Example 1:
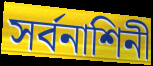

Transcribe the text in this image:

সর্বনাশিনী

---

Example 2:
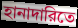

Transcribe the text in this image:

হানাদারিতে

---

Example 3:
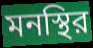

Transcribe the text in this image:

মনস্থির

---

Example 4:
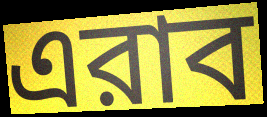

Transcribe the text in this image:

এরাব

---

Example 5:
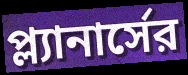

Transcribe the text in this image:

প্ল্যানার্সের